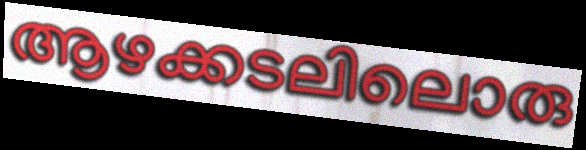
ആഴക്കടലിലൊരു